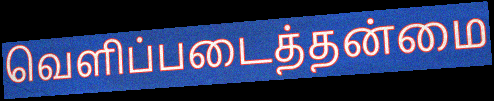
வெளிப்படைத்தன்மை